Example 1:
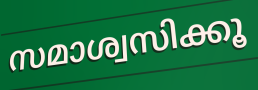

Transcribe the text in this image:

സമാശ്വസിക്കൂ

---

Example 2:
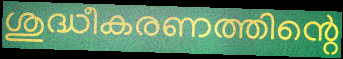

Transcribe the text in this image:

ശുദ്ധീകരണത്തിന്റെ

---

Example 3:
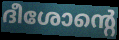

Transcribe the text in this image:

ദീശോന്റെ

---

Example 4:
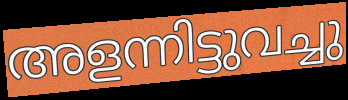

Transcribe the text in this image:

അളന്നിട്ടുവച്ചു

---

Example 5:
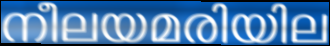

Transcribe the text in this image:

നീലയമരിയില